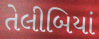
તેલીબિયાં